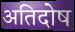
अतिदोष